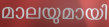
മാലയുമായി